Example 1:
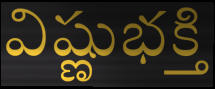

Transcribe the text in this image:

విష్ణుభక్తి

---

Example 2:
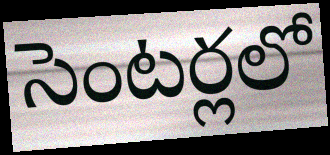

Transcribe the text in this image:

సెంటర్లలో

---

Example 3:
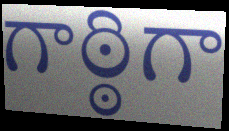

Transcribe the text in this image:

గాఠ్ఠిగా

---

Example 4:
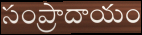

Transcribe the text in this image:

సంప్రాదాయం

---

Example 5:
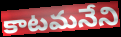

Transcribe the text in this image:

కాటమనేని